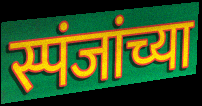
स्पंजांच्या